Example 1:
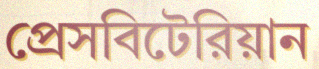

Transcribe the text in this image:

প্রেসবিটেরিয়ান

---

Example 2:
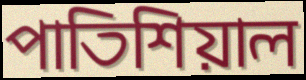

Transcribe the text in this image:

পাতিশিয়াল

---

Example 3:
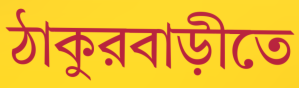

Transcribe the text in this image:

ঠাকুরবাড়ীতে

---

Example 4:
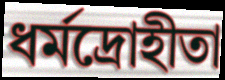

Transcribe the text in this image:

ধর্মদ্রোহীতা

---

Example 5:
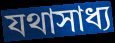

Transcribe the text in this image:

যথাসাধ্য